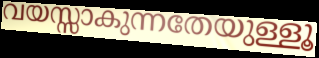
വയസ്സാകുന്നതേയുള്ളൂ